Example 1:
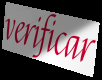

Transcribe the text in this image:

verificar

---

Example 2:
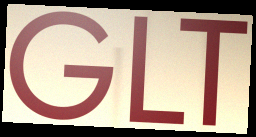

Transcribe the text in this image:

GLT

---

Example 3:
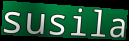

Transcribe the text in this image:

susila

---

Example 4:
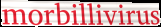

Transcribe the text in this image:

morbillivirus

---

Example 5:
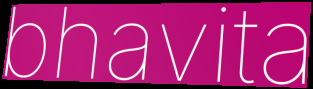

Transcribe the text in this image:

bhavita